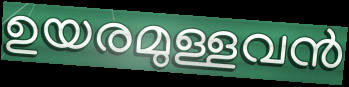
ഉയരമുള്ളവൻ